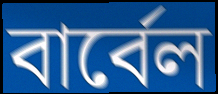
বার্বেল